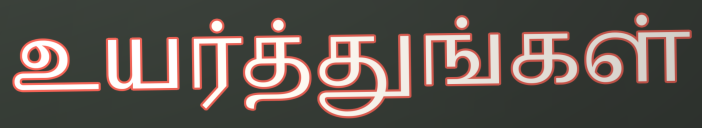
உயர்த்துங்கள்